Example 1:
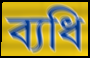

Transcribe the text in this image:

ব্যধি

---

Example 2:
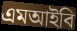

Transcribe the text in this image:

এমআইবি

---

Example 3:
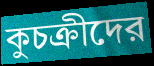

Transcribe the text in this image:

কুচক্রীদের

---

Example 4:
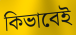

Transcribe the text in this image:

কিভাবেই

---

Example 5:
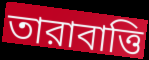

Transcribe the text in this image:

তারাবাত্তি